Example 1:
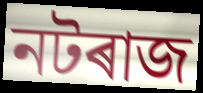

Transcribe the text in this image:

নটৰাজ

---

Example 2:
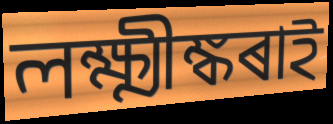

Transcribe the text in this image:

লক্ষ্মীঙ্কৰাই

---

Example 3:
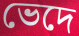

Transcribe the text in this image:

ভেদে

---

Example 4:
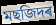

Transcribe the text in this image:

মছজিদৰ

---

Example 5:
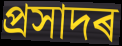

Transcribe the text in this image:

প্ৰসাদৰ